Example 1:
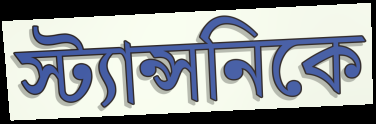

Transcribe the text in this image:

স্ট্যান্সনিকে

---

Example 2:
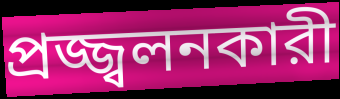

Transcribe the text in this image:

প্রজ্জ্বলনকারী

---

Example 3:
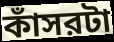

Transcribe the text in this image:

কাঁসরটা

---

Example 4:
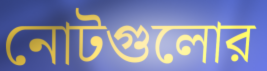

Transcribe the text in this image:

নোটগুলোর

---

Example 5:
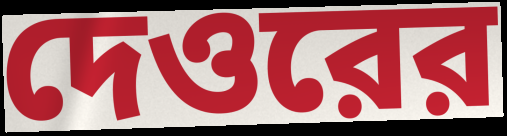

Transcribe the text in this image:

দেওরের